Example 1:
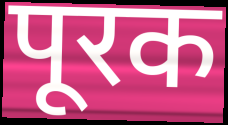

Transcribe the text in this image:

पूरक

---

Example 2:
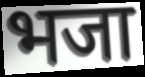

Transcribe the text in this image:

भजा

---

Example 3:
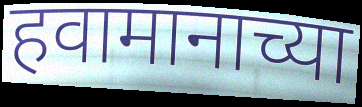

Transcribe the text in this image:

हवामानाच्या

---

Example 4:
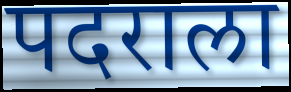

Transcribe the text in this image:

पदराला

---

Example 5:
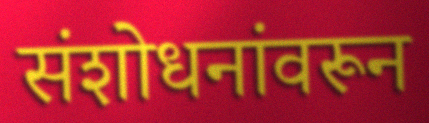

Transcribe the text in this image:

संशोधनांवरून